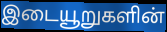
இடையூறுகளின்